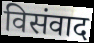
विसंवाद